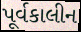
પૂર્વકાલીન